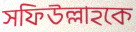
সফিউল্লাহকে